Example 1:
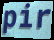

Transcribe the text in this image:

pir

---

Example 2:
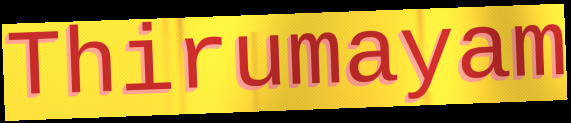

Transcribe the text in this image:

Thirumayam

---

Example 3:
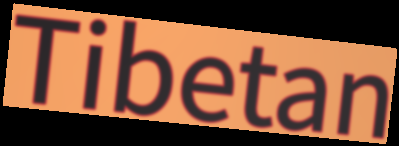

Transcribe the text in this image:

Tibetan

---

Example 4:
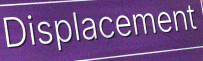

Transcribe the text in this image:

Displacement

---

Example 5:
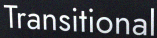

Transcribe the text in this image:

Transitional